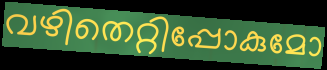
വഴിതെറ്റിപ്പോകുമോ